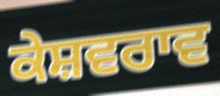
ਕੇਸ਼ਵਰਾਵ